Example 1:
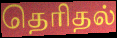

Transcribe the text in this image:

தெரிதல்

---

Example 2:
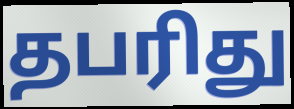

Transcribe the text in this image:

தபரிது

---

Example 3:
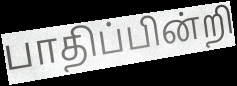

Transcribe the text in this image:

பாதிப்பின்றி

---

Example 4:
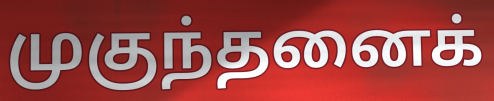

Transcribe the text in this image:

முகுந்தனைக்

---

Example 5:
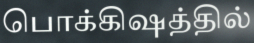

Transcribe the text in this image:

பொக்கிஷத்தில்